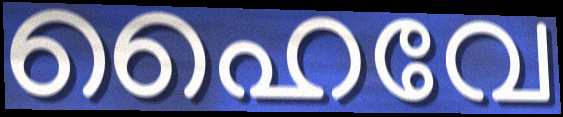
ഹൈവേ